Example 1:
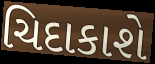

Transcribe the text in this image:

ચિદાકાશે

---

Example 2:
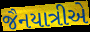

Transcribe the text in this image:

જૈનયાત્રીએ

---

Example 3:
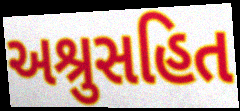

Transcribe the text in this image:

અશ્રુસહિત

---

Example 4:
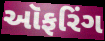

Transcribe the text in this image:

ઑફરિંગ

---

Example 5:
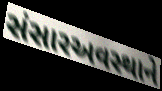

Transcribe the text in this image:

સંસારઅવસ્થાને